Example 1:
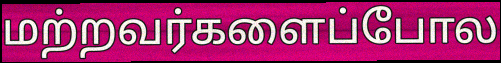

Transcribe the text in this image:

மற்றவர்களைப்போல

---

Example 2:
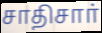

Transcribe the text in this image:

சாதிசார்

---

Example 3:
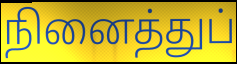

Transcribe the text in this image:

நினைத்துப்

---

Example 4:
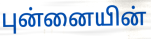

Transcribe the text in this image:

புன்னையின்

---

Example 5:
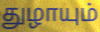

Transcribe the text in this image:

துழாயும்